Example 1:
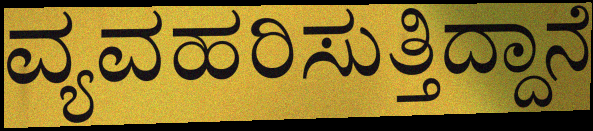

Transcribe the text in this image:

ವ್ಯವಹರಿಸುತ್ತಿದ್ದಾನೆ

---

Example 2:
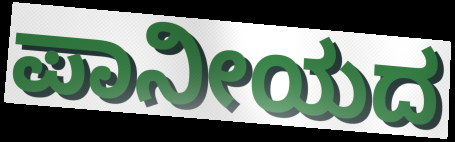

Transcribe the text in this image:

ಪಾನೀಯದ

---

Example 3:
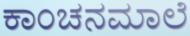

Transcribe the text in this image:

ಕಾಂಚನಮಾಲೆ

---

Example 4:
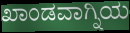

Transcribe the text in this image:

ಖಾಂಡವಾಗ್ನಿಯ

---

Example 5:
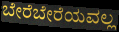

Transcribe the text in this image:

ಬೇರೆಬೇರೆಯವಲ್ಲ